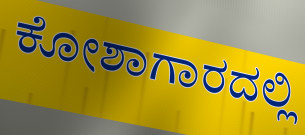
ಕೋಶಾಗಾರದಲ್ಲಿ